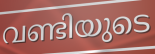
വണ്ടിയുടെ